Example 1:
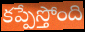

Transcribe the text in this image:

కప్పేస్తోంది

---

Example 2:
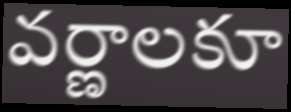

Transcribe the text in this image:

వర్ణాలకూ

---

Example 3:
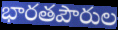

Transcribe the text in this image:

భారతపౌరుల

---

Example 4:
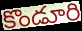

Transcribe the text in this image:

కొండూరి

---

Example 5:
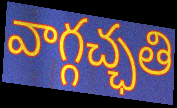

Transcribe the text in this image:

వాగ్గచ్ఛతి